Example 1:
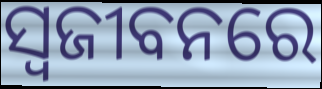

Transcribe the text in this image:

ସ୍ଵଜୀବନରେ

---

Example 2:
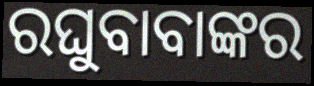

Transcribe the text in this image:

ରଘୁବାବାଙ୍କର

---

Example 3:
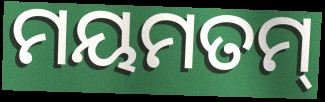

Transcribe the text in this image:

ମୟମତମ୍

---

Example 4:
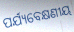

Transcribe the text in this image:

ପର୍ଯ୍ୟବେକ୍ଷଣୀୟ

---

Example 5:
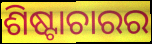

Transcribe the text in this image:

ଶିଷ୍ଟାଚାରର